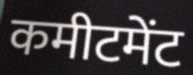
कमीटमेंट